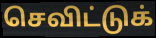
செவிட்டுக்